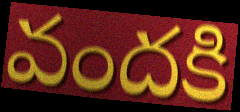
వందకి